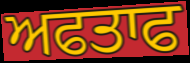
ਅਫਤਾਫ